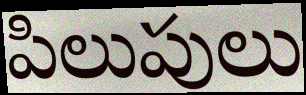
పిలుపులు